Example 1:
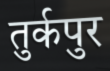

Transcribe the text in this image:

तुर्कपुर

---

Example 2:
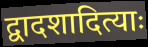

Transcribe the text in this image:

द्वादशादित्याः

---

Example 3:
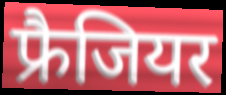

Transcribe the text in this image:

फ्रैजियर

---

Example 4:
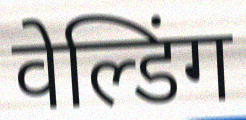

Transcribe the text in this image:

वेल्डिंग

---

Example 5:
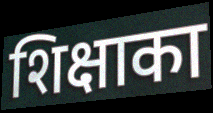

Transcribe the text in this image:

शिक्षाका